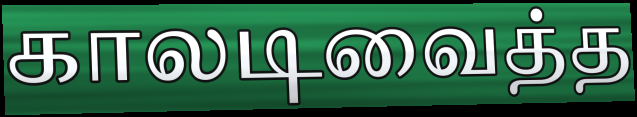
காலடிவைத்த